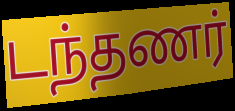
டந்தணர்